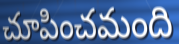
చూపించమంది